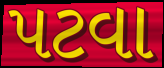
પટવા